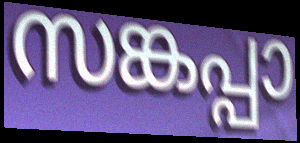
സങ്കപ്പാ